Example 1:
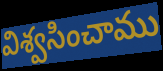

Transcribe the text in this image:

విశ్వసించాము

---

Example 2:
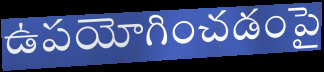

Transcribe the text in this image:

ఉపయోగించడంపై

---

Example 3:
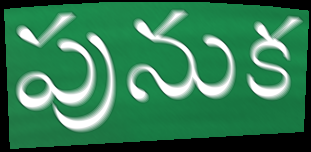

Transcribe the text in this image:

పునుక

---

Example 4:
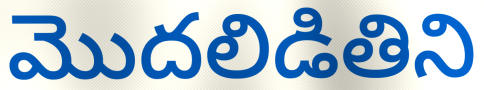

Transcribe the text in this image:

మొదలిడితిని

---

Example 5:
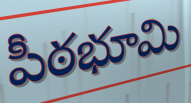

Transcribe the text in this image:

పీఠభూమి